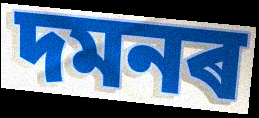
দমনৰ